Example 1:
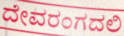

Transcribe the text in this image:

ದೇವರಂಗದಲಿ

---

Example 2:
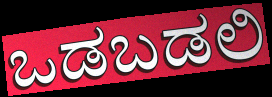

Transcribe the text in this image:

ಒಡಬಡಲಿ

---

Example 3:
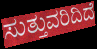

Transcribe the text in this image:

ಸುತ್ತುವರಿದಿದೆ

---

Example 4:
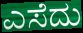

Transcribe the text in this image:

ಎಸೆದು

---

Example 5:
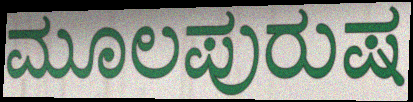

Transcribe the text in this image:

ಮೂಲಪುರುಷ